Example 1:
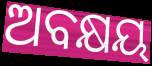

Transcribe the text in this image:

ଅବକ୍ଷୟ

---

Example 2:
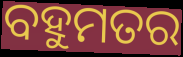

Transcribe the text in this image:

ବହୁମତର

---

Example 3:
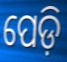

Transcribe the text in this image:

ପେଡ଼ି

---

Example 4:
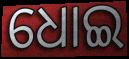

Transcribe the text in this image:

ଧୋଇ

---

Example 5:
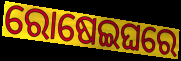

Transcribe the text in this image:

ରୋଷେଇଘରେ